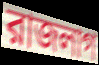
রাজলাগ